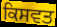
ਕਿਸਵਤ